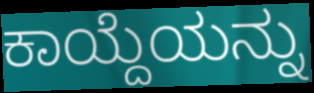
ಕಾಯ್ದೆಯನ್ನು